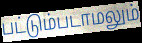
பட்டும்படாமலும்